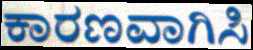
ಕಾರಣವಾಗಿಸಿ